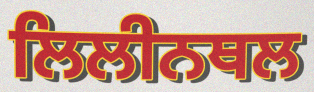
ਲਿਲੀਨਥਲ